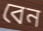
বেন